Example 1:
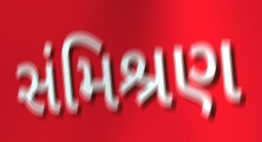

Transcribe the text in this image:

સંમિશ્રણ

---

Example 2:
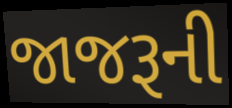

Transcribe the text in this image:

જાજરૂની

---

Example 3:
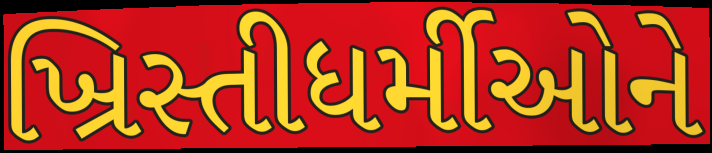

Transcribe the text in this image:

ખ્રિસ્તીધર્મીઓને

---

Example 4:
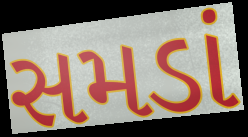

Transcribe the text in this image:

સમડાં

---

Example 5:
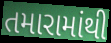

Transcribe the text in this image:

તમારામાંથી